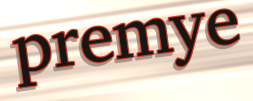
premye